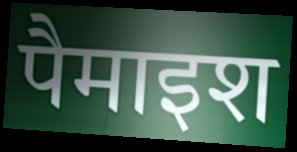
पैमाइश